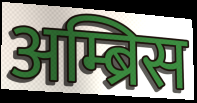
अम्ब्रिस